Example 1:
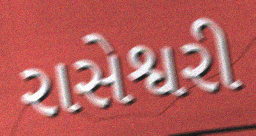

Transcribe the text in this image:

રાસેશ્વરી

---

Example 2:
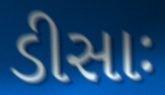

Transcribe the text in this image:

ડીસાઃ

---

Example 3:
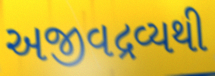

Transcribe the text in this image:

અજીવદ્રવ્યથી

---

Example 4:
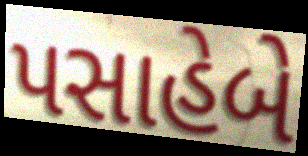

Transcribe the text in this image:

પસાહેબે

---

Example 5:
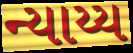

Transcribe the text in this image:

ન્યાય્ય